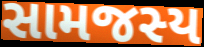
સામજસ્ય